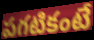
పగటికంటే